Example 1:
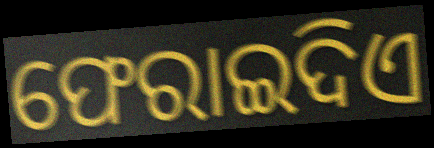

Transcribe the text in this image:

ଫେରାଇଦିଏ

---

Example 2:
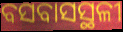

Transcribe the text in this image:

ବସବାସସ୍ଥଳୀ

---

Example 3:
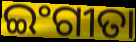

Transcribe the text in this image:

ଇଂଗୀତା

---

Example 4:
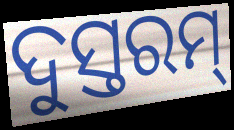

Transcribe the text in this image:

ଦୁସ୍ତରମ୍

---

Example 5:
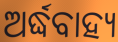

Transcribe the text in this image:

ଅର୍ଦ୍ଧବାହ୍ୟ